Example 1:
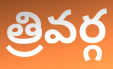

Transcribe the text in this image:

త్రివర్గ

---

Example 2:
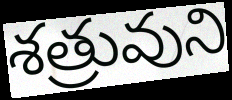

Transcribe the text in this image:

శత్రువుని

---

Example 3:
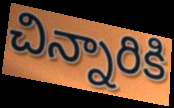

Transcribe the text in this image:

చిన్నారికి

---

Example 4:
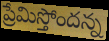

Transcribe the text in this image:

ప్రేమిస్తోందన్న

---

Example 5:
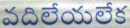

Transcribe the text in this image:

వదిలేయలేక